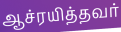
ஆச்ரயித்தவர்